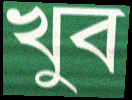
খুব